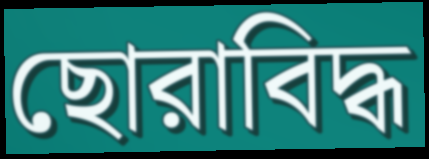
ছোরাবিদ্ধ